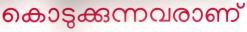
കൊടുക്കുന്നവരാണ്